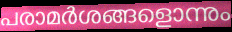
പരാമർശങ്ങളൊന്നും